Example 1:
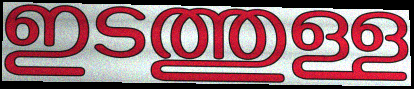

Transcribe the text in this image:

ഇടത്തുള്ള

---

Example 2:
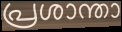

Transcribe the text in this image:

പ്രശാന്താ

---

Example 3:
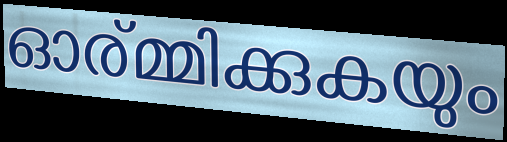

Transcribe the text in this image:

ഓര്മ്മിക്കുകയും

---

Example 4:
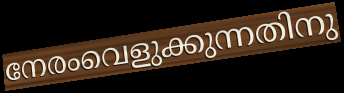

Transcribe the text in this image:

നേരംവെളുക്കുന്നതിനു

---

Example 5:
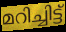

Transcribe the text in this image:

മറിച്ചിട്ട്